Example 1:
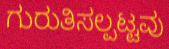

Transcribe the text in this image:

ಗುರುತಿಸಲ್ಪಟ್ಟವು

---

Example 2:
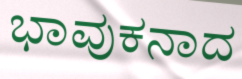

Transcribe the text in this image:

ಭಾವುಕನಾದ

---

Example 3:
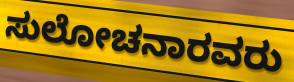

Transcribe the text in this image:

ಸುಲೋಚನಾರವರು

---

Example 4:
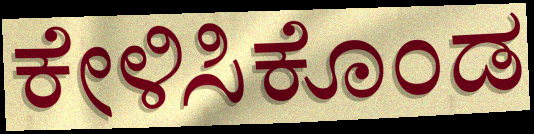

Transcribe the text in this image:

ಕೇಳಿಸಿಕೊಂಡ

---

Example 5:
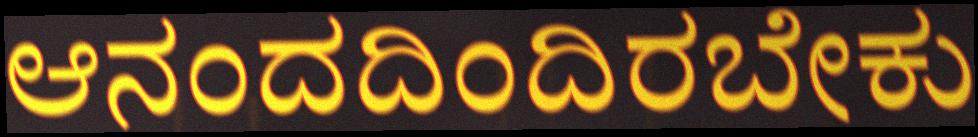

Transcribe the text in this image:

ಆನಂದದಿಂದಿರಬೇಕು